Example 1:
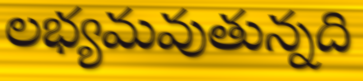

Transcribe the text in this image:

లభ్యమవుతున్నది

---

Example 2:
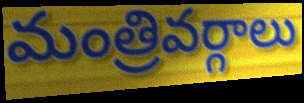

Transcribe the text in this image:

మంత్రివర్గాలు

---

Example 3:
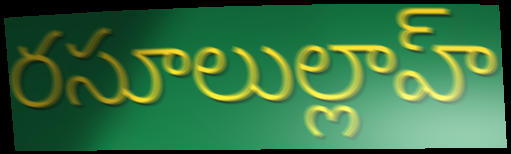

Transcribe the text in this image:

రసూలుల్లాహ్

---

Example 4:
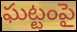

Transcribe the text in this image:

ఘట్టంపై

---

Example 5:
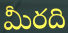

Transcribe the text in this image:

మీరది